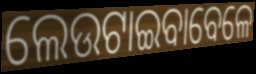
ଲେଉଟାଇବାବେଳେ